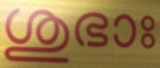
ശുഭാഃ